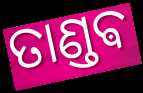
ତାଣ୍ଡଵ